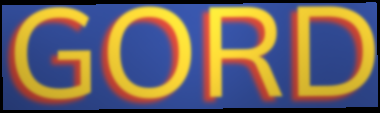
GORD